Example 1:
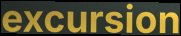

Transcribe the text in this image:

excursion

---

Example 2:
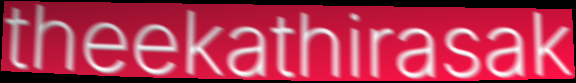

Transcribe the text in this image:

theekathirasak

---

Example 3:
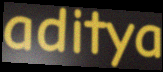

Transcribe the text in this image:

aditya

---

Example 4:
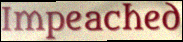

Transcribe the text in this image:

Impeached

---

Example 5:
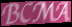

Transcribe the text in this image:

BCMA